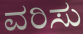
ವರಿಸು